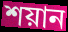
শয়ান